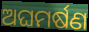
ଅଘମର୍ଷଣ